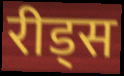
रीड्स